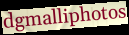
dgmalliphotos